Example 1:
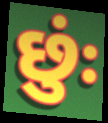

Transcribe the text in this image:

છુંઃ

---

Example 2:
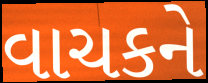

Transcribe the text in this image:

વાચકને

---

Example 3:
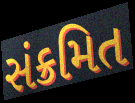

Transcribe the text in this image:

સંક્રમિત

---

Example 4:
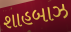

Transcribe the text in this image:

શાહબાઝ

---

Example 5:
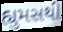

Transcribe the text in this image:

હ્યુમસથી